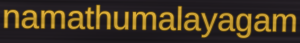
namathumalayagam